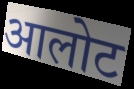
आलोट